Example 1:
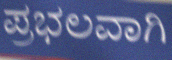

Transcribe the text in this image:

ಪ್ರಭಲವಾಗಿ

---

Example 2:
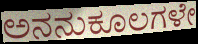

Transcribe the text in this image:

ಅನನುಕೂಲಗಳೇ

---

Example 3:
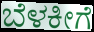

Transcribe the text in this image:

ಬೆಳಕೀಗೆ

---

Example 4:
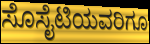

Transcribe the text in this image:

ಸೊಸೈಟಿಯವರಿಗೂ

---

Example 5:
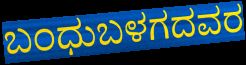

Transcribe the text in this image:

ಬಂಧುಬಳಗದವರ